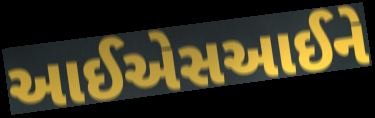
આઈએસઆઈને